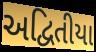
અદ્વિતીયા